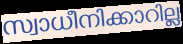
സ്വാധീനിക്കാറില്ല